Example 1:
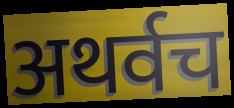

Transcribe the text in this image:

अथर्वच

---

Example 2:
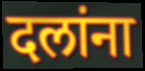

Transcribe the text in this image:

दलांना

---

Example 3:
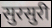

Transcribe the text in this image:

सुरसुरी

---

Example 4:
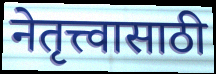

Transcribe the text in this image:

नेतृत्त्वासाठी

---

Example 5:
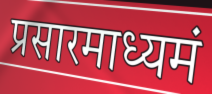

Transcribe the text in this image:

प्रसारमाध्यमं